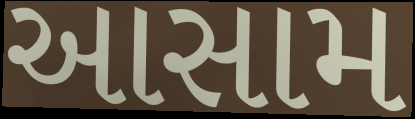
આસામ